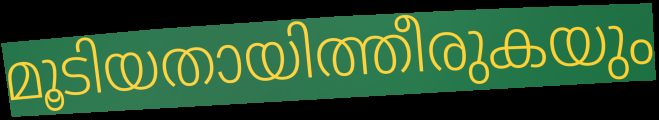
മൂടിയതായിത്തീരുകയും